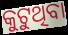
କୁଟୁଥିବା